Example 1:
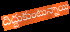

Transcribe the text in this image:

దిద్దుకుంటున్నాయి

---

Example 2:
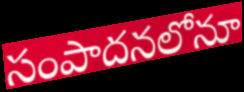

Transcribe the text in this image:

సంపాదనలోనూ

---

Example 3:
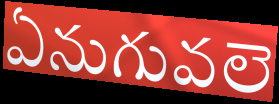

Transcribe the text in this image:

ఏనుగువలె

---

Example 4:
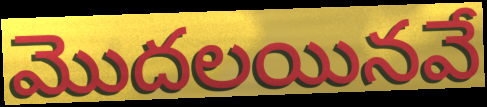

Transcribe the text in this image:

మొదలయినవే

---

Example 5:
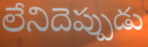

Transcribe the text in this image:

లేనిదెప్పుడు